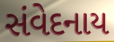
સંવેદનાય